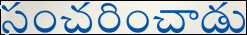
సంచరించాడు